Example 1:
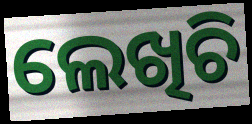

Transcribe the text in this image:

ଲେଖିଚି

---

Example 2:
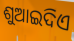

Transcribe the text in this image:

ଶୁଆଇଦିଏ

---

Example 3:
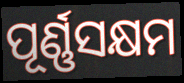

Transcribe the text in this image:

ପୂର୍ଣ୍ଣସକ୍ଷମ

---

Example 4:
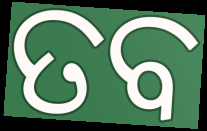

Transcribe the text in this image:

ତବ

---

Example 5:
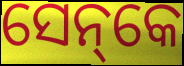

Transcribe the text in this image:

ସେନ୍‌କେ